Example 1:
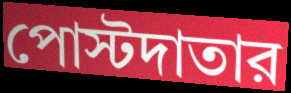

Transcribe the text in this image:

পোস্টদাতার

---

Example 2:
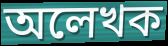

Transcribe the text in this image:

অলেখক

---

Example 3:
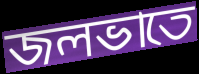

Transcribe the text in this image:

জলভাতে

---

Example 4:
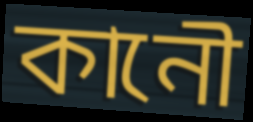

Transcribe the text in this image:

কানৌ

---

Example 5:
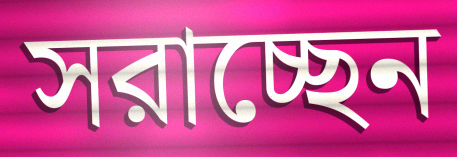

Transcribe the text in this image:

সরাচ্ছেন